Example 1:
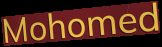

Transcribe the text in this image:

Mohomed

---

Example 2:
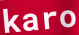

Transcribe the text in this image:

karo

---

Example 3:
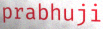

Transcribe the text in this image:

prabhuji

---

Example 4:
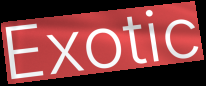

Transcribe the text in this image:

Exotic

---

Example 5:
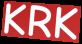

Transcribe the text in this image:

KRK